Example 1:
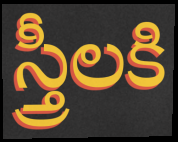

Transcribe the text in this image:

స్త్రీలకి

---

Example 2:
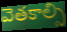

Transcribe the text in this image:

వెతకాల్సి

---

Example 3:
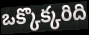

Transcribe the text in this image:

ఒక్కొక్కరిది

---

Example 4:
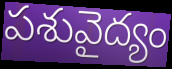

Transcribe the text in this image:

పశువైద్యం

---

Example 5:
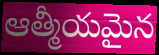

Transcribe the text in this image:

ఆత్మీయమైన